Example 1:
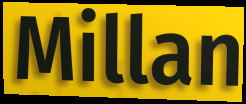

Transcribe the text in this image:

Millan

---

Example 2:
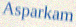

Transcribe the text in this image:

Asparkam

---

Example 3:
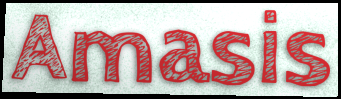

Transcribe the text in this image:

Amasis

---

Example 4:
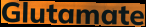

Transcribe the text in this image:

Glutamate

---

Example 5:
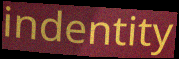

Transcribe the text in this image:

indentity